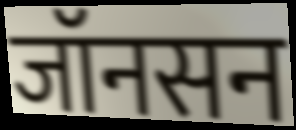
जॉनसन